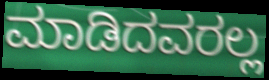
ಮಾಡಿದವರಲ್ಲ